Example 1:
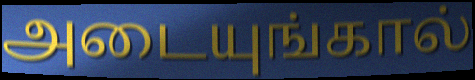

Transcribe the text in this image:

அடையுங்கால்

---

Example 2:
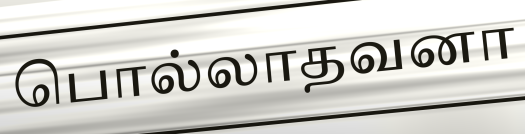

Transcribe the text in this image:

பொல்லாதவனா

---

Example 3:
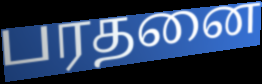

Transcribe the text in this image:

பரதனை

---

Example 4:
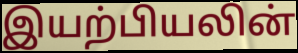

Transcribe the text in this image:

இயற்பியலின்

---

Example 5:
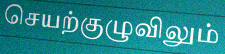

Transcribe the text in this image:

செயற்குழுவிலும்